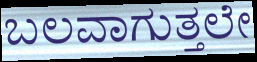
ಬಲವಾಗುತ್ತಲೇ